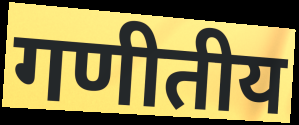
गणीतीय